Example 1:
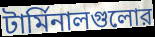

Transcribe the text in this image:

টার্মিনালগুলোর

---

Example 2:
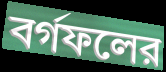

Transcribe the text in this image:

বর্গফলের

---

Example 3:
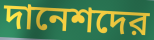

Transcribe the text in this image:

দানেশদের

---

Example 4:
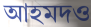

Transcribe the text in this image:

আহমদও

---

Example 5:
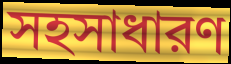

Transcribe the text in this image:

সহসাধারণ